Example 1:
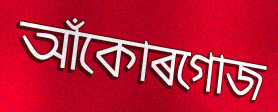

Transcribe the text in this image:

আঁকোৰগোজ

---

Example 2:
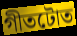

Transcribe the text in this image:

গীতটোত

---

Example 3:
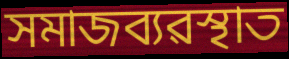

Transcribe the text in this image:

সমাজব্যৱস্থাত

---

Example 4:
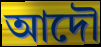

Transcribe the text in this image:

আদৌ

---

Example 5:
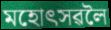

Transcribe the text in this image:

মহোৎসৱলৈ